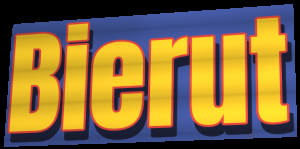
Bierut